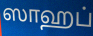
ஸாஹப்